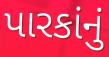
પારકાંનું